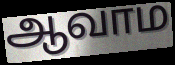
ஆவாம